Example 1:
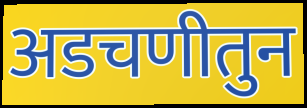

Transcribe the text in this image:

अडचणीतुन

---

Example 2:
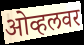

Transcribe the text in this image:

ओव्हलवर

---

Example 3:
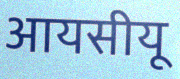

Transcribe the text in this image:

आयसीयू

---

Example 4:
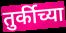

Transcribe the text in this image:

तुर्कीच्या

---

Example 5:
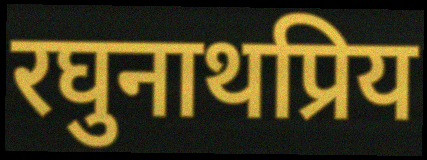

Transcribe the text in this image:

रघुनाथप्रिय